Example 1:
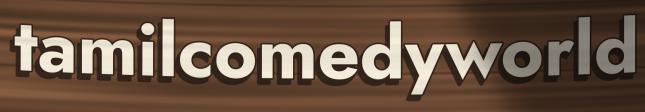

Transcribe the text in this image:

tamilcomedyworld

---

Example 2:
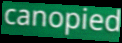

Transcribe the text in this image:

canopied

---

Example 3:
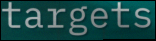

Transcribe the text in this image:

targets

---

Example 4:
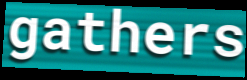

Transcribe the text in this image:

gathers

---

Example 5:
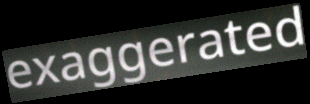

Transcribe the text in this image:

exaggerated